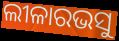
ଲୀଳାରଭସୁ